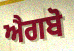
ਐਗਬੋ